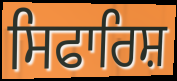
ਸਿਫਾਰਿਸ਼